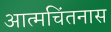
आत्मचिंतनास